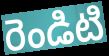
రెండిటి